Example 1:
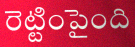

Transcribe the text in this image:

రెట్టింపైంది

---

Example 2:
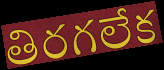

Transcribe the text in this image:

తిరగలేక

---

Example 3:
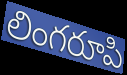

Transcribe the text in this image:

లింగరూపి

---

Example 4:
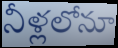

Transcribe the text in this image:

నీళ్లలోనూ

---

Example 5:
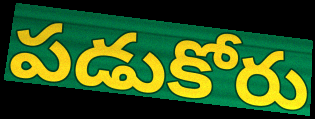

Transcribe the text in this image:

పడుకోరు